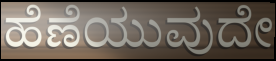
ಹೆಣೆಯುವುದೇ